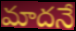
మాదనే